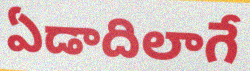
ఏడాదిలాగే